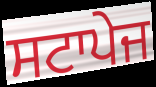
ਸਟਾਪੇਜ